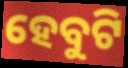
ହେବୁଟି